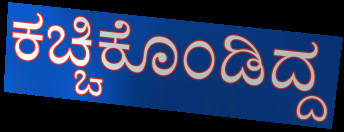
ಕಚ್ಚಿಕೊಂಡಿದ್ದ